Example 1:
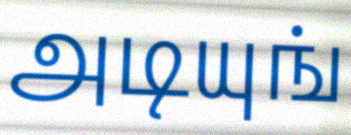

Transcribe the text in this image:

அடியுங்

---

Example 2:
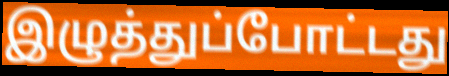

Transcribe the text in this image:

இழுத்துப்போட்டது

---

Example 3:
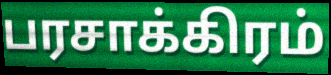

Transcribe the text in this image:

பரசாக்கிரம்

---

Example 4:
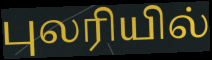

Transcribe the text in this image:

புலரியில்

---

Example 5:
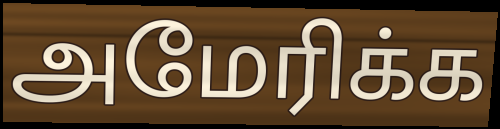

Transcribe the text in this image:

அமேரிக்க